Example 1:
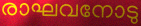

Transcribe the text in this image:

രാഘവനോടു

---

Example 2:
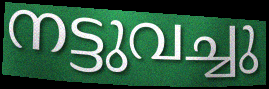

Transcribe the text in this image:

നട്ടുവച്ചു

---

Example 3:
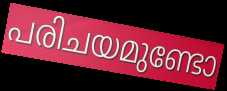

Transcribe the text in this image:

പരിചയമുണ്ടോ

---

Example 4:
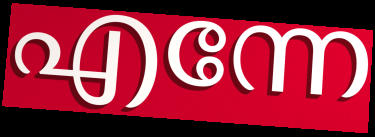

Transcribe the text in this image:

എന്നേ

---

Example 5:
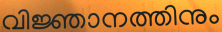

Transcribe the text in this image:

വിജ്ഞാനത്തിനും